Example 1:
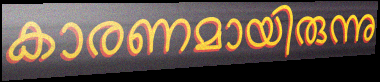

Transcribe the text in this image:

കാരണമായിരുന്നു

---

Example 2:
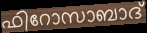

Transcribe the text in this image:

ഫിറോസാബാദ്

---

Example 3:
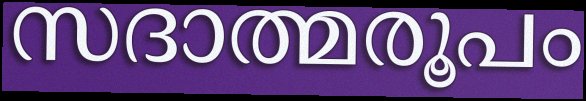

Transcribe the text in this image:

സദാത്മരൂപം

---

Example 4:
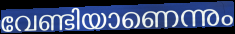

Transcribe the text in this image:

വേണ്ടിയാണെന്നും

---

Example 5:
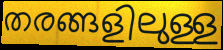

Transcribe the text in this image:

തരങ്ങളിലുള്ള